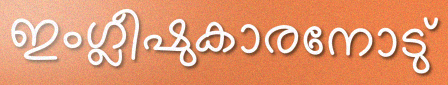
ഇംഗ്ലീഷുകാരനോടു്